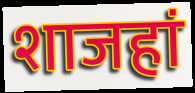
शाजहां